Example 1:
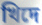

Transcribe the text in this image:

খিদে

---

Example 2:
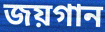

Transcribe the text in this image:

জয়গান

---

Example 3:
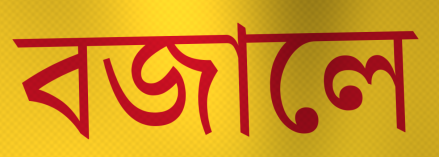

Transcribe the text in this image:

বজালে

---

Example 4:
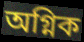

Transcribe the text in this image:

অগ্নিক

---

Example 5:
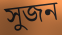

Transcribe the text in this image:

সুজন